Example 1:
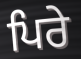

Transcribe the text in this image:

ਪਿਰੇ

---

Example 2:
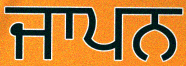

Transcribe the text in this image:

ਜਾਪਨ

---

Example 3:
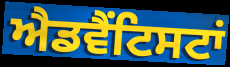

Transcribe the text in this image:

ਐਡਵੈਂਟਿਸਟਾਂ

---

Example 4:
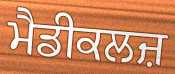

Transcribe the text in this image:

ਮੈਡੀਕਲਜ਼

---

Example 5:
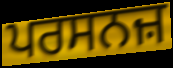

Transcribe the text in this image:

ਪਰਸਨਜ਼